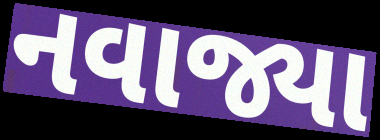
નવાજ્યા